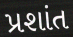
પ્રશાંત